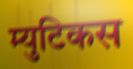
म्युटिकस